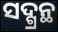
ସଦ୍ଗ୍ରନ୍ଥ